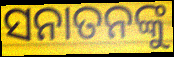
ସନାତନଙ୍କୁ